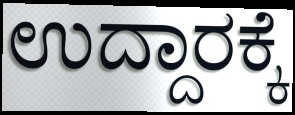
ಉದ್ದಾರಕ್ಕೆ